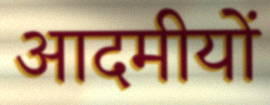
आदमीयों